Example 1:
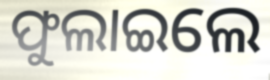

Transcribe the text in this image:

ଫୁଲାଇଲେ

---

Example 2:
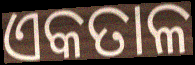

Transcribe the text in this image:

ଏକତାଳ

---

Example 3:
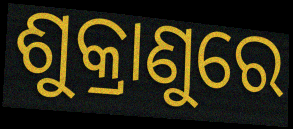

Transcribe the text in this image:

ଶୁକ୍ରାଣୁରେ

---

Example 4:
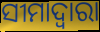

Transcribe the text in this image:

ସୀମାଦ୍ଵାରା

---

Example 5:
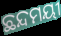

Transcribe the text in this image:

ଛନ୍ଦମୟୀ